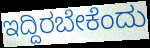
ಇದ್ದಿರಬೇಕೆಂದು